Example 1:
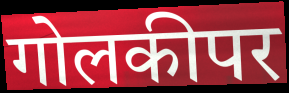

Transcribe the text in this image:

गोलकीपर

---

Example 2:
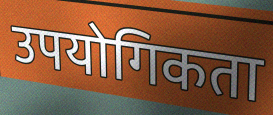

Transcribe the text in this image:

उपयोगिकता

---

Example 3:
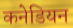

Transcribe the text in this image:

कनेडियन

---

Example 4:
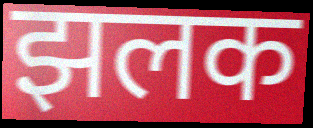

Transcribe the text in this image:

झलक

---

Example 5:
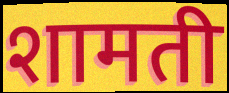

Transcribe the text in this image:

शामती